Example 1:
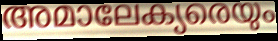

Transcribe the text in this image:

അമാലേക്യരെയും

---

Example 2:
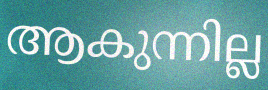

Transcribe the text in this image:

ആകുന്നില്ല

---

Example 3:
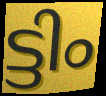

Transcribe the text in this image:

ട്ടിം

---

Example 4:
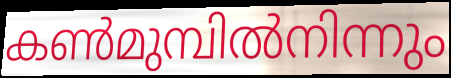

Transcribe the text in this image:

കൺമുമ്പിൽനിന്നും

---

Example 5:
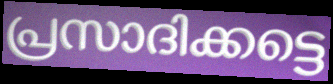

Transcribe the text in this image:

പ്രസാദിക്കട്ടെ